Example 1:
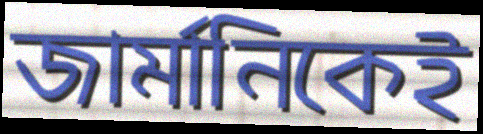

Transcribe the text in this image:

জার্মানিকেই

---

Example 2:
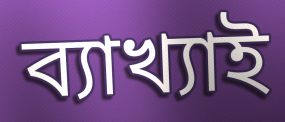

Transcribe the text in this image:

ব্যাখ্যাই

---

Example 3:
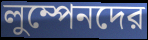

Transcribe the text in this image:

লুম্পেনদের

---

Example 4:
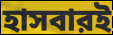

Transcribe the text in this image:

হাসবারই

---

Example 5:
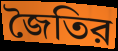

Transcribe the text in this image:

জৈতির